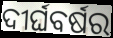
ଦୀର୍ଘବର୍ଷର